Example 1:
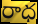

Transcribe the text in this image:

రాధ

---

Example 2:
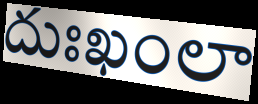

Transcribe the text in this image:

దుఃఖంలా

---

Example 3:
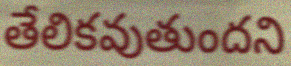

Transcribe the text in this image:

తేలికవుతుందని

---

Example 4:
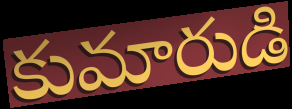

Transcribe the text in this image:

కుమారుడి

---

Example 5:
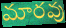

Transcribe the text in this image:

మారవు